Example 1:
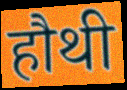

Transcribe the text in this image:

हौथी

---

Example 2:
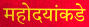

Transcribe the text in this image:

महोदयांकडे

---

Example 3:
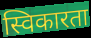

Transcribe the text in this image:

स्विकारता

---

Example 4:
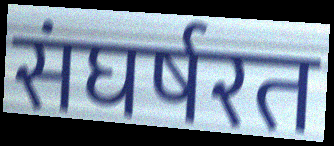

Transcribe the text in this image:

संघर्षरत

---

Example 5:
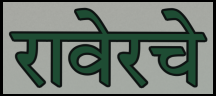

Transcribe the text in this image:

रावेरचे